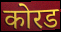
कोरड